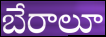
బేరాలూ